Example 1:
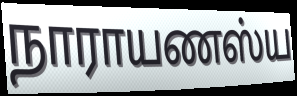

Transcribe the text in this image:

நாராயணஸ்ய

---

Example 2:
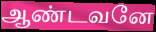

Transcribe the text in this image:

ஆண்டவனே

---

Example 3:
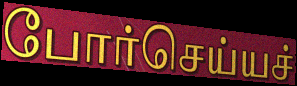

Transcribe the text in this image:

போர்செய்யச்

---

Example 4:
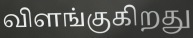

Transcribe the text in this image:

விளங்குகிறது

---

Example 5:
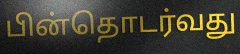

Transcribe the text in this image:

பின்தொடர்வது